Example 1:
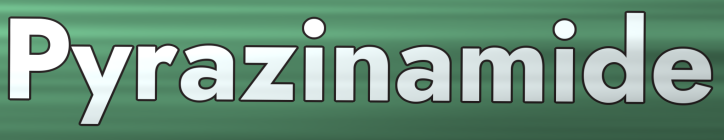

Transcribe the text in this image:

Pyrazinamide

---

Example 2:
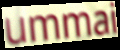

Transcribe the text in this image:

ummai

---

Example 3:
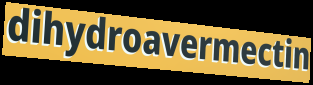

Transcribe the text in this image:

dihydroavermectin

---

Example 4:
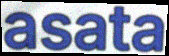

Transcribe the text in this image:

asata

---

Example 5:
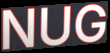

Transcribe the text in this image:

NUG